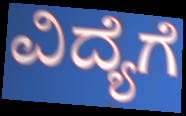
ವಿದ್ಯೆಗೆ